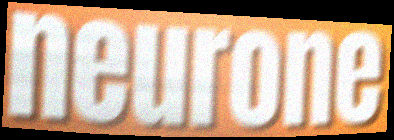
neurone